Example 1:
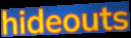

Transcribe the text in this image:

hideouts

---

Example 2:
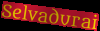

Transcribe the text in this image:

Selvadurai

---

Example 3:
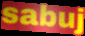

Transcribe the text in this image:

sabuj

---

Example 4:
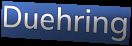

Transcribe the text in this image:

Duehring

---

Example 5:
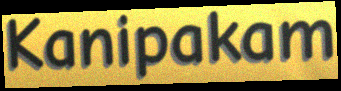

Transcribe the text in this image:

Kanipakam